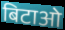
बिटाओ